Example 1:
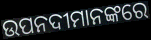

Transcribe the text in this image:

ଉପନଦୀମାନଙ୍କରେ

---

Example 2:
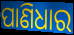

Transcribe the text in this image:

ପାଣିଧାର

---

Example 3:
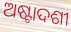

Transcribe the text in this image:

ଅଷ୍ଟାଦଶୀ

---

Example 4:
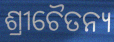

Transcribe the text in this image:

ଶ୍ରୀଚୈତନ୍ୟ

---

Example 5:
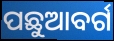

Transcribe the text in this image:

ପଛୁଆବର୍ଗ